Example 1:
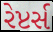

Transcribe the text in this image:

રેપ્ટર્સ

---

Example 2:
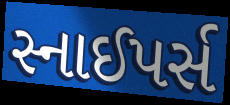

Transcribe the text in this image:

સ્નાઈપર્સ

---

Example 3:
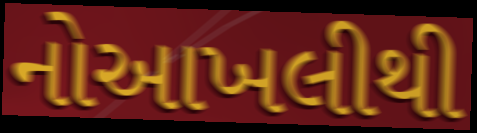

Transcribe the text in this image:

નોઆખલીથી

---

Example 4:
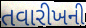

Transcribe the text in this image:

તવારીખની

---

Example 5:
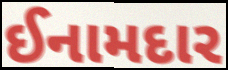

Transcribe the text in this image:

ઈનામદાર